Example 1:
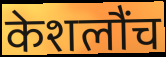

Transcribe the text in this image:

केशलौंच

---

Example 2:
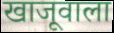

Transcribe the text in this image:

खाजूवाला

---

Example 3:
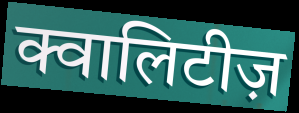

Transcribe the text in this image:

क्वालिटीज़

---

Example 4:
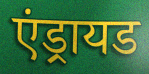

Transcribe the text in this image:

एंड्रायड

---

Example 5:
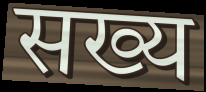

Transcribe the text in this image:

सख्य